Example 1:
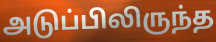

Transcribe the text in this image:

அடுப்பிலிருந்த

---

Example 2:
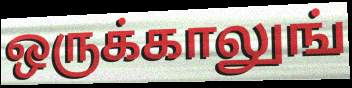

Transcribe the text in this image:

ஒருக்காலுங்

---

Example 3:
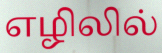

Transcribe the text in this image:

எழிலில்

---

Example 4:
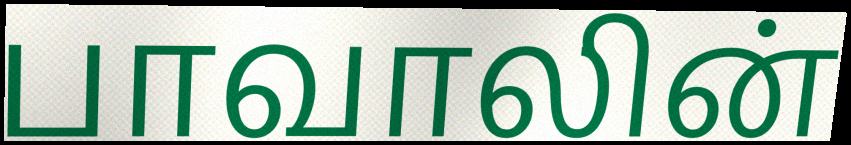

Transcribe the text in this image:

பாவாலின்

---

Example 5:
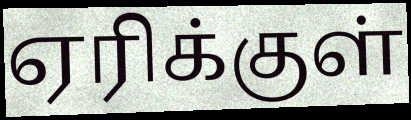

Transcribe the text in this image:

ஏரிக்குள்